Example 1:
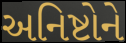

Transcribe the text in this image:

અનિષ્ટોને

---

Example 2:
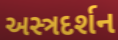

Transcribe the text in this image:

અસ્ત્રદર્શન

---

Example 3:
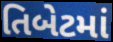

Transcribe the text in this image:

તિબેટમાં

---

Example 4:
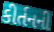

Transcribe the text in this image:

કીર્તનની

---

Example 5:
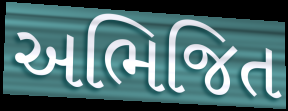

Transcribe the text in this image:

અભિજિત